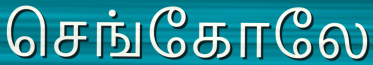
செங்கோலே